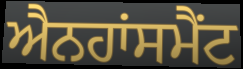
ਐਨਹਾਂਸਮੈਂਟ